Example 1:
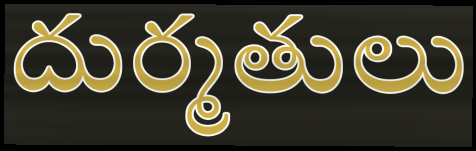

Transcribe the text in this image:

దుర్మతులు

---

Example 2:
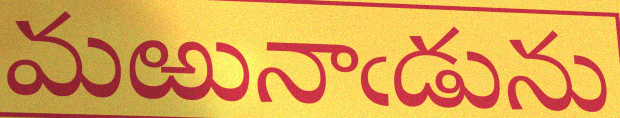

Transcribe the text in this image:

మఱునాఁడును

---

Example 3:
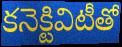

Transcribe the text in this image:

కనెక్టివిటీతో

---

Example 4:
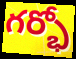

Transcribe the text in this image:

గర్భో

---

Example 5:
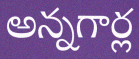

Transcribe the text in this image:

అన్నగార్ల